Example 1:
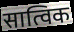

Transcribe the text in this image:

सात्विक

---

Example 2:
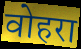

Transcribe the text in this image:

वोहरा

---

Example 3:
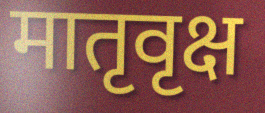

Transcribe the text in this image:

मातृवृक्ष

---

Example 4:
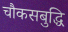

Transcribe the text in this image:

चौकसबुद्धि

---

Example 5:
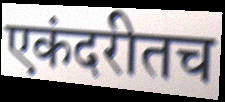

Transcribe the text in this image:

एकंदरीतच